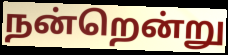
நன்றென்று